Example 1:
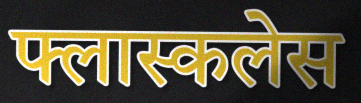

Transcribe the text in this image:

फ्लास्कलेस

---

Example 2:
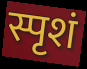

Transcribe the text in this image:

स्पृशं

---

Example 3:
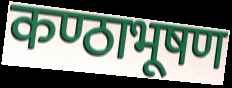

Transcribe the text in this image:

कण्ठाभूषण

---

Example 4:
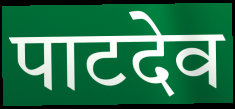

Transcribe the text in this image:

पाटदेव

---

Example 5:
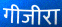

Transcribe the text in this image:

गीजीरा